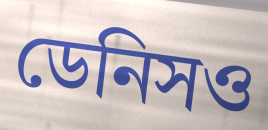
ডেনিসও